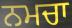
ਨਮਚਾ